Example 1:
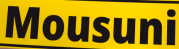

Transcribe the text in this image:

Mousuni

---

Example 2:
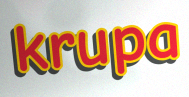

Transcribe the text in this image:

krupa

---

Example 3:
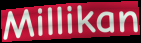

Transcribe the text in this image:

Millikan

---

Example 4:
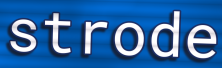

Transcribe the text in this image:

strode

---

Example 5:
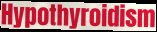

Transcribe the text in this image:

Hypothyroidism